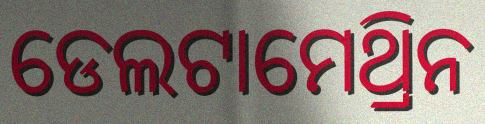
ଡେଲଟାମେଥ୍ରିନ